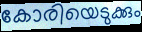
കോരിയെടുക്കും